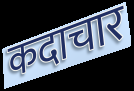
कदाचार